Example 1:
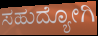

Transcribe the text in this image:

ಸಹುದ್ಯೋಗಿ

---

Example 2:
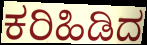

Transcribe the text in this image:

ಕರಿಹಿಡಿದ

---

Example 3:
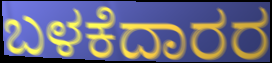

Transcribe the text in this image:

ಬಳಕೆದಾರರ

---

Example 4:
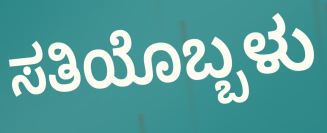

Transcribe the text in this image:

ಸತಿಯೊಬ್ಬಳು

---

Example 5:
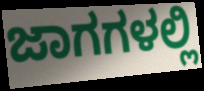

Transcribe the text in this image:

ಜಾಗಗಳಲ್ಲಿ